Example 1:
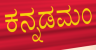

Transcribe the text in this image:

ಕನ್ನಡಮಂ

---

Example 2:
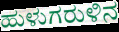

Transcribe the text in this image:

ಹುಳುಗರುಳಿನ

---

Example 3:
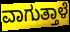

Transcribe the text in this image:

ವಾಗುತ್ತಾಳೆ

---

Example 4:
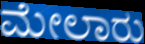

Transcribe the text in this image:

ಮೇಲಾರು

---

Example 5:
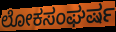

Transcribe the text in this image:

ಲೋಕಸಂಘರ್ಷ